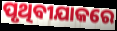
ପୃଥିବୀଯାକରେ